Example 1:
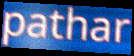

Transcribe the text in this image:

pathar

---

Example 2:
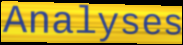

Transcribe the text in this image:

Analyses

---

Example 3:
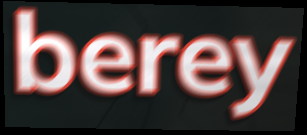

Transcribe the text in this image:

berey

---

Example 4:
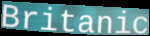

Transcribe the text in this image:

Britanic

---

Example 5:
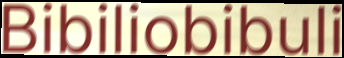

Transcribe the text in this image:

Bibiliobibuli